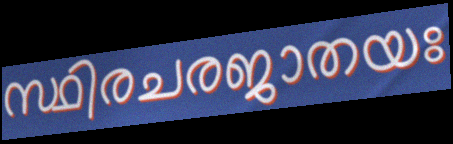
സ്ഥിരചരജാതയഃ